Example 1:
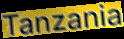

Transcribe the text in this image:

Tanzania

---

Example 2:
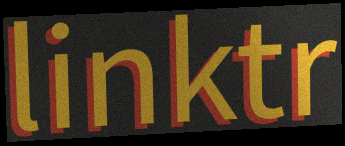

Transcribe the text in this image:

linktr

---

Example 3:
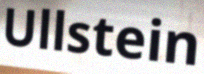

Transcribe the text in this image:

Ullstein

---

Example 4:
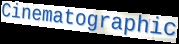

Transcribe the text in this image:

Cinematographic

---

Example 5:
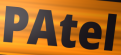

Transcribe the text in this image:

PAtel